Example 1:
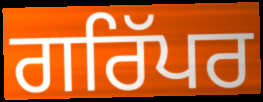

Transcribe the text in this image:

ਗਰਿੱਪਰ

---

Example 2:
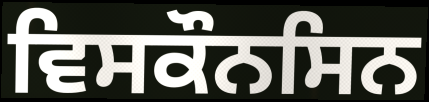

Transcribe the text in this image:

ਵਿਸਕੌਨਸਿਨ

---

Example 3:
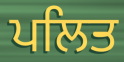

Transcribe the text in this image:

ਪਲਿਤ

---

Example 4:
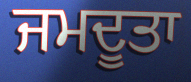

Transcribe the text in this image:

ਜਮਦੂਤਾ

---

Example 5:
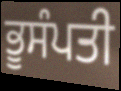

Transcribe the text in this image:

ਭੂਸੰਪਤੀ